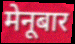
मेनूबार